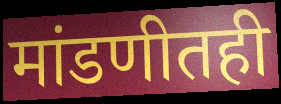
मांडणीतही